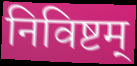
निविष्टम्